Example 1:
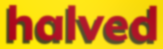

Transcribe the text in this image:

halved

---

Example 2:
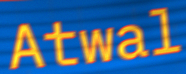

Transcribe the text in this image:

Atwal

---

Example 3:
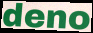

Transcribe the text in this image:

deno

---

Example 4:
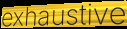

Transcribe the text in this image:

exhaustive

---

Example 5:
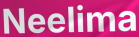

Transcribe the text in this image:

Neelima